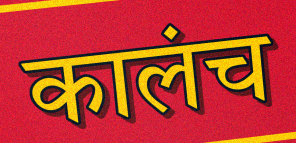
कालंच